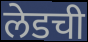
लेडची